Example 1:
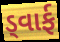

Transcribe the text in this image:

ડ્વાર્ફ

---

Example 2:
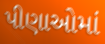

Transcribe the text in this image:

પીણાઓમાં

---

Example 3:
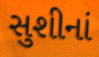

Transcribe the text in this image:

સુશીનાં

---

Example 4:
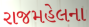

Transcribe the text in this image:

રાજમહેલના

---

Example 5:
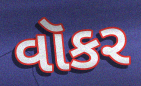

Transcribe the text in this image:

વૉકર